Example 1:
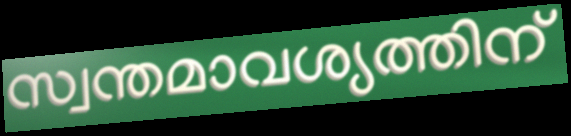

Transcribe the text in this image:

സ്വന്തമാവശ്യത്തിന്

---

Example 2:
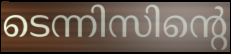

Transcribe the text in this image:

ടെന്നിസിന്റെ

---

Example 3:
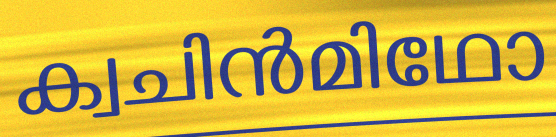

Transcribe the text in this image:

ക്വചിൻമിഥോ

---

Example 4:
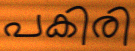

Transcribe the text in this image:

പകിരി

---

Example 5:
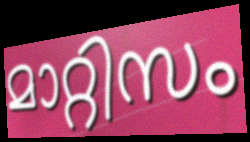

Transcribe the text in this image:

മാറ്റിസം